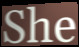
She